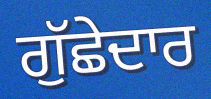
ਗੁੱਛੇਦਾਰ